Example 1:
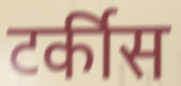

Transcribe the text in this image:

टर्कीस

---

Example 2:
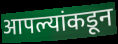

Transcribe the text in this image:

आपल्यांकडून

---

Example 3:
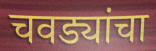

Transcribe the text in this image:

चवड्यांचा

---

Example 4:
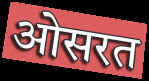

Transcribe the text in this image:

ओसरत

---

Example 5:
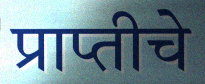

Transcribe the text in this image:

प्राप्तीचे